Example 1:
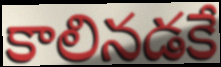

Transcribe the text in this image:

కాలినడకే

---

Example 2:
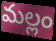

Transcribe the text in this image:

మల్లం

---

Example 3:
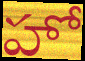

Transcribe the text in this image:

హో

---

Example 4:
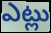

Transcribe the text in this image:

ఎట్లు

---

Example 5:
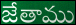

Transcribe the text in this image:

జేతాము